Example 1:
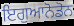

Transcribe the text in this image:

ਇਗੁਆਨੋਡੋਨ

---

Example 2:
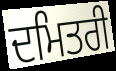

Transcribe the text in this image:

ਦਮਿਤਰੀ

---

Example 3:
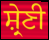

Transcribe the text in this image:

ਸ਼੍ਰੇਣੀ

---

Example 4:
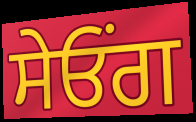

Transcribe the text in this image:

ਸੇਓਂਗ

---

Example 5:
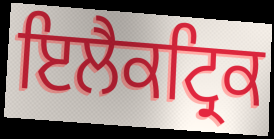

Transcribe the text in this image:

ਇਲੈਕਟ੍ਰਿਕ